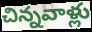
చిన్నవాళ్లు